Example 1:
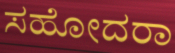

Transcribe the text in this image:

ಸಹೋದರಾ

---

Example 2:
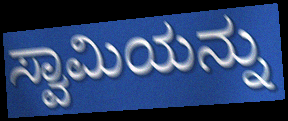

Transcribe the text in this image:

ಸ್ವಾಮಿಯನ್ನು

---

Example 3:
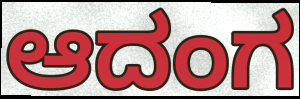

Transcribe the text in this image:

ಆದಂಗ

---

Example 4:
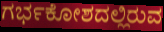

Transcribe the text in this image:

ಗರ್ಭಕೋಶದಲ್ಲಿರುವ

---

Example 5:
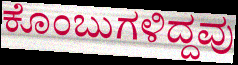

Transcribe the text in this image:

ಕೊಂಬುಗಳಿದ್ದವು